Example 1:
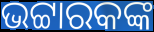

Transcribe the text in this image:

ଭଟ୍ଟାରକଙ୍କ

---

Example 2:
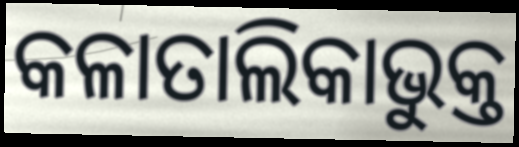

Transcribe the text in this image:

କଳାତାଲିକାଭୁକ୍ତ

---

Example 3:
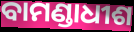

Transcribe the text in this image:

ବାମଣ୍ଡାଧୀଶ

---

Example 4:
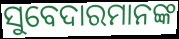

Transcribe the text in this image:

ସୁବେଦାରମାନଙ୍କ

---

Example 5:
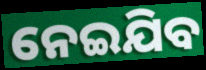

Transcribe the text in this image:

ନେଇଯିବ